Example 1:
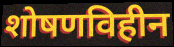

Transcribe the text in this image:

शोषणविहीन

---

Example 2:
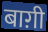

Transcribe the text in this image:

बाग़ी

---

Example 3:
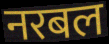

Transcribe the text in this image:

नरबल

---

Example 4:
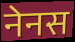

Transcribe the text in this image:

नेनस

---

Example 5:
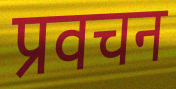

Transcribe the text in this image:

प्रवचन